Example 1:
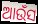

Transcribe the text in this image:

ଆଉଁସ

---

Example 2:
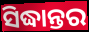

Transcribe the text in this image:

ସିଦ୍ଧାନ୍ତର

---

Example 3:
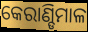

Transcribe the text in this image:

କେରାଣ୍ଡିମାଳ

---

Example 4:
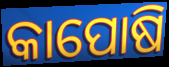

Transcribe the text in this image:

କାପୋଷି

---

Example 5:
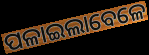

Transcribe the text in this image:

ପଳାଇଲାବେଳେ